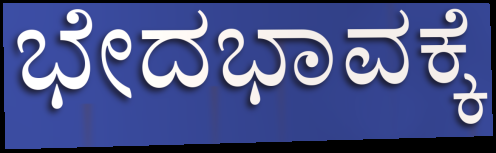
ಭೇದಭಾವಕ್ಕೆ